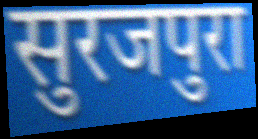
सुरजपुरा